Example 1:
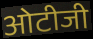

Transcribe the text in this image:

ओटीजी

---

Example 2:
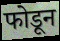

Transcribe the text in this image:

फोडून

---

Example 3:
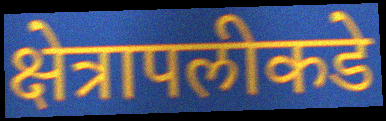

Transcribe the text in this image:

क्षेत्रापलीकडे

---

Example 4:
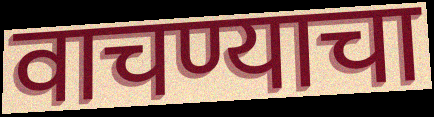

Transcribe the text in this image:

वाचण्याचा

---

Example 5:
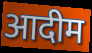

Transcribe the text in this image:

आदीम